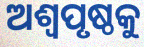
ଅଶ୍ୱପୃଷ୍ଠକୁ